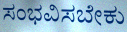
ಸಂಭವಿಸಬೇಕು